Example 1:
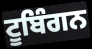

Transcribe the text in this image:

ਟੂਬਿੰਗਨ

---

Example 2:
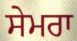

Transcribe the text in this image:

ਸੇਮਰਾ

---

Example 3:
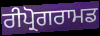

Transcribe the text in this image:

ਰੀਪ੍ਰੋਗਰਾਮਡ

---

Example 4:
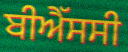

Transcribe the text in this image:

ਬੀਐੱਸਸੀ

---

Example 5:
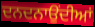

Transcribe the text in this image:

ਦਨਦਨਾਉਂਦੀਆਂ